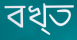
বখ্ত